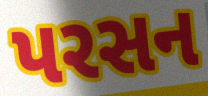
પરસન